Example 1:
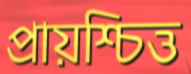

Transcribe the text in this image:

প্রায়শ্চিত্ত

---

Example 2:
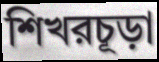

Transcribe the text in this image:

শিখরচূড়া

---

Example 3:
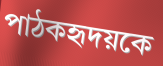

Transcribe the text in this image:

পাঠকহৃদয়কে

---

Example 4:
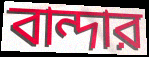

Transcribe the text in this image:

বান্দার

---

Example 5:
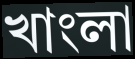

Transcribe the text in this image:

খাংলা